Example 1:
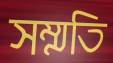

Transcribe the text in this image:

সম্মতি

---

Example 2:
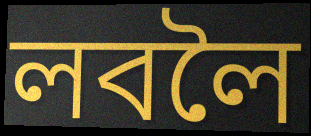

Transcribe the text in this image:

লবলৈ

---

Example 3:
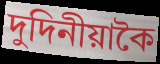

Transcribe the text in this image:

দুদিনীয়াকৈ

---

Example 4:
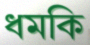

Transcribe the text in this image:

ধমকি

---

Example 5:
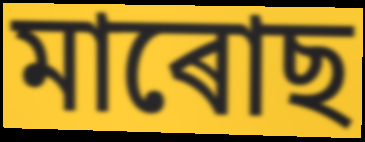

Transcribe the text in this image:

মাৰোছ